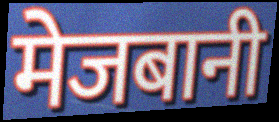
मेजबानी